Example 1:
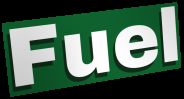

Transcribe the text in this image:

Fuel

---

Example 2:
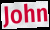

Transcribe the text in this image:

John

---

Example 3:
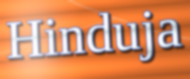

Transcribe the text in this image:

Hinduja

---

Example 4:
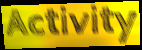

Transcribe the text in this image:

Activity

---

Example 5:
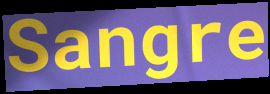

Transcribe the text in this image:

Sangre